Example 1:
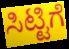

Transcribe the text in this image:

ಸಿಟ್ಟಿಗೆ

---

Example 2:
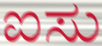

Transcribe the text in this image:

ಐಸು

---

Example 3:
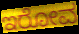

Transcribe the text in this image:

ಇರೋವ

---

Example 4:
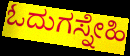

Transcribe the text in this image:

ಓದುಗಸ್ನೇಹಿ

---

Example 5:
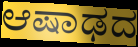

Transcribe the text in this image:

ಆಷಾಢದ